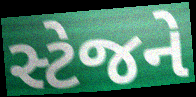
સ્ટેજને